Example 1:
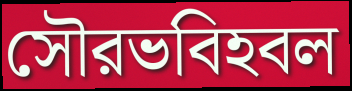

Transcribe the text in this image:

সৌরভবিহবল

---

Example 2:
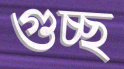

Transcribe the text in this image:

গুচ্ছ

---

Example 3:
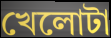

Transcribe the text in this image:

খেলোটা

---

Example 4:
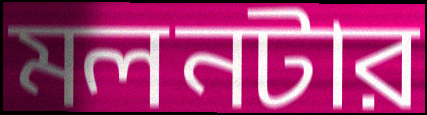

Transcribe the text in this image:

মলনটার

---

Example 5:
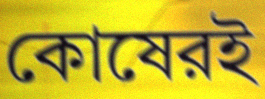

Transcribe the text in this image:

কোষেরই